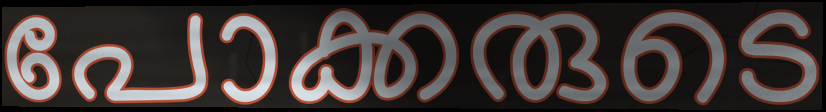
പോക്കരുടെ